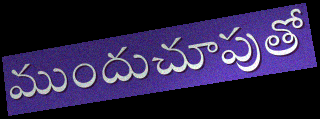
ముందుచూపుతో